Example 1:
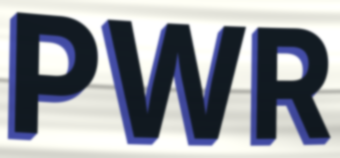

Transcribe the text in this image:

PWR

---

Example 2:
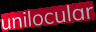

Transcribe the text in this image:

unilocular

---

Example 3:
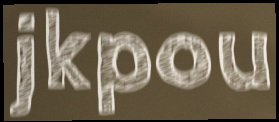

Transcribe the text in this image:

jkpou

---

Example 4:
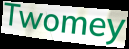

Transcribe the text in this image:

Twomey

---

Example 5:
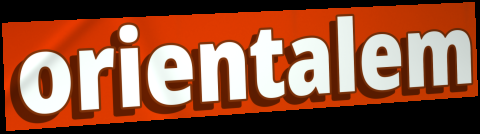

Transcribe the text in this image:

orientalem